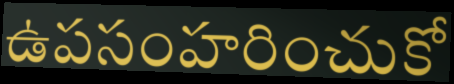
ఉపసంహరించుకో